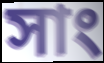
সাং